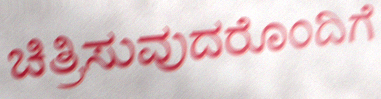
ಚಿತ್ರಿಸುವುದರೊಂದಿಗೆ